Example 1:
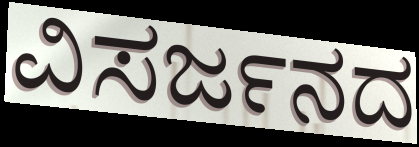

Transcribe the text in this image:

ವಿಸರ್ಜನದ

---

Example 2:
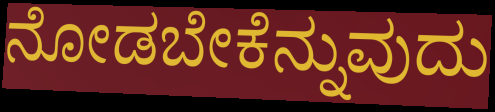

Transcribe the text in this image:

ನೋಡಬೇಕೆನ್ನುವುದು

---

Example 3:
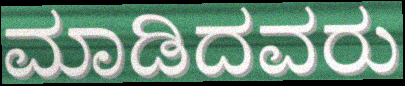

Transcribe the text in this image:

ಮಾಡಿದವರು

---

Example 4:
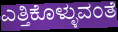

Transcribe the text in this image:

ಎತ್ತಿಕೊಳ್ಳುವಂತೆ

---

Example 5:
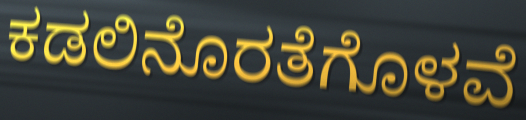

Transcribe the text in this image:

ಕಡಲಿನೊರತೆಗೊಳವೆ